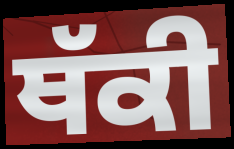
ਥੱਕੀ